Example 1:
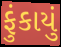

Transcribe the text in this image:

ફુંકાયું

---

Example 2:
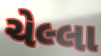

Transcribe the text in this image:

ચેલ્લા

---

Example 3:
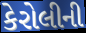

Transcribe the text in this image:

કેરોલીની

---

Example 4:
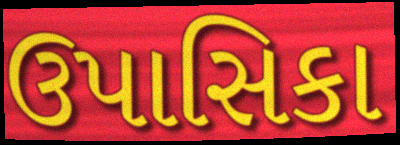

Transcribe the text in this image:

ઉપાસિકા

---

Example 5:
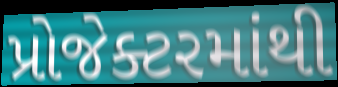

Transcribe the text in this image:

પ્રોજેક્ટરમાંથી